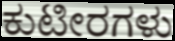
ಕುಟೀರಗಳು